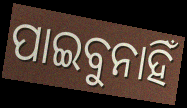
ପାଇବୁନାହିଁ